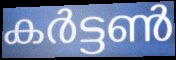
കർട്ടൺ